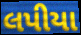
લપીયા